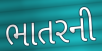
ભાતરની